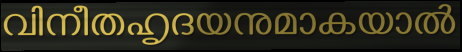
വിനീതഹൃദയനുമാകയാൽ